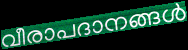
വീരാപദാനങ്ങൾ